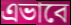
এভাবে